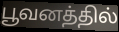
பூவனத்தில்